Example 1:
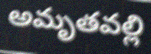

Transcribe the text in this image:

అమృతవల్లి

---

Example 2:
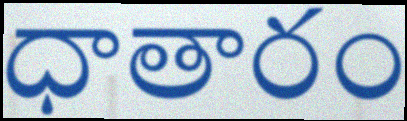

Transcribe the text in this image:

ధాతారం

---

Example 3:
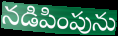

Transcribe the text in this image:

నడిపింపును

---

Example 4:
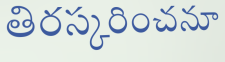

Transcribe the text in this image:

తిరస్కరించనూ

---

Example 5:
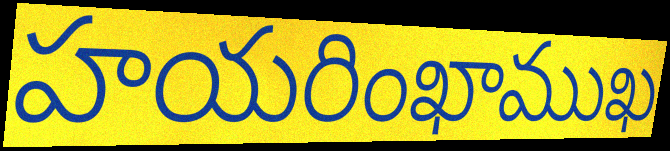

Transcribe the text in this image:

హయరింఖాముఖ